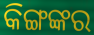
କିଙ୍ଗଙ୍କର